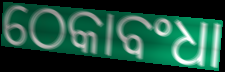
ଠେକାବଂଧା